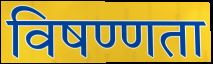
विषण्णता